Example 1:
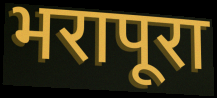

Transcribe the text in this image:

भरापूरा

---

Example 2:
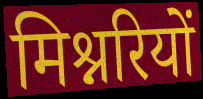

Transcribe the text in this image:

मिश्नरियों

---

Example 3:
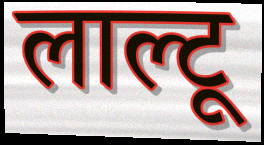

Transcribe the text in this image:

लाल्टू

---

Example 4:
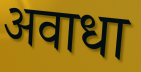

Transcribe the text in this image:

अवाधा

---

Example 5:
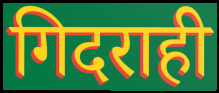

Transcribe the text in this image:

गिदराही